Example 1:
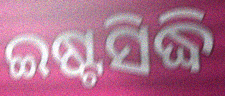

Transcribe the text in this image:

ଇଷ୍ଟସିଦ୍ଧି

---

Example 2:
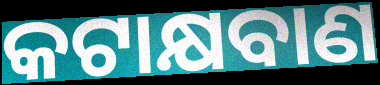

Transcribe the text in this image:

କଟାକ୍ଷବାଣ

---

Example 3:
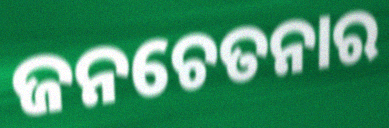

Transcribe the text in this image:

ଜନଚେତନାର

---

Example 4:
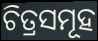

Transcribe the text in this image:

ଚିତ୍ରସମୂହ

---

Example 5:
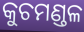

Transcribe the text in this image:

କୁଚମଣ୍ଡଳ